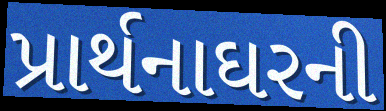
પ્રાર્થનાઘરની